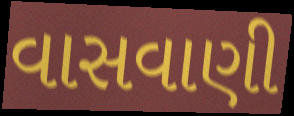
વાસવાણી